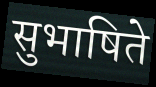
सुभाषिते